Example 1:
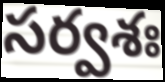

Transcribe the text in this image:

సర్వశః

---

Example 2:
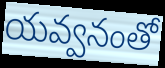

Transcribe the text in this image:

యవ్వనంతో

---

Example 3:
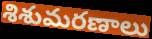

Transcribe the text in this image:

శిశుమరణాలు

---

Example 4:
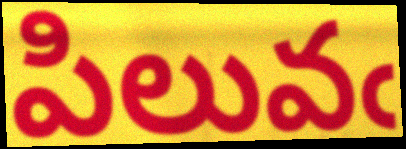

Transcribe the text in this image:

పిలువఁ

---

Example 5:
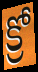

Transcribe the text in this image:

క్రో